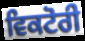
ਵਿਕਟੋਰੀ